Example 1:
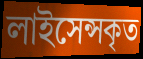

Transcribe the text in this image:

লাইসেন্সকৃত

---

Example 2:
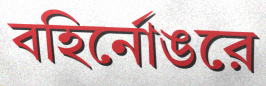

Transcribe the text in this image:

বহির্নোঙরে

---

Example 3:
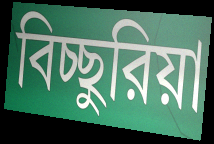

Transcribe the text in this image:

বিচ্ছুরিয়া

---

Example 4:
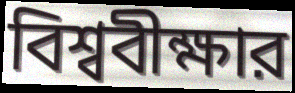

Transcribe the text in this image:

বিশ্ববীক্ষার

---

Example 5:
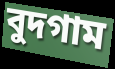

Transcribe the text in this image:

বুদগাম